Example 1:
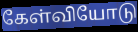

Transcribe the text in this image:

கேள்வியோடு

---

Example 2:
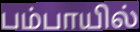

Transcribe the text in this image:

பம்பாயில்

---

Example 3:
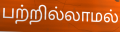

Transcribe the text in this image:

பற்றில்லாமல்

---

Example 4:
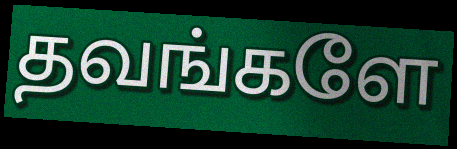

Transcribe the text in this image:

தவங்களே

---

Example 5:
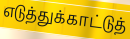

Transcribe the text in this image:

எடுத்துக்காட்டுத்